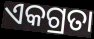
ଏକଗ୍ରତା